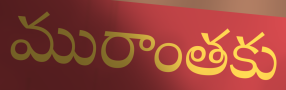
మురాంతకు